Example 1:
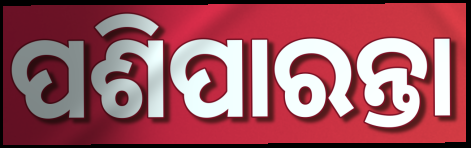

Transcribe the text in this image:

ପଶିପାରନ୍ତା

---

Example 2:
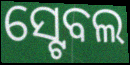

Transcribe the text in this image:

ସ୍ଟେବଲ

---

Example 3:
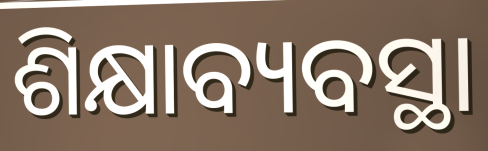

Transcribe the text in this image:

ଶିକ୍ଷାବ୍ୟବସ୍ଥା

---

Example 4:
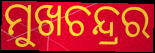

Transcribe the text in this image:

ମୁଖଚନ୍ଦ୍ରର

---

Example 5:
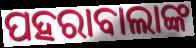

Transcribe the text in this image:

ପହରାବାଲାଙ୍କ